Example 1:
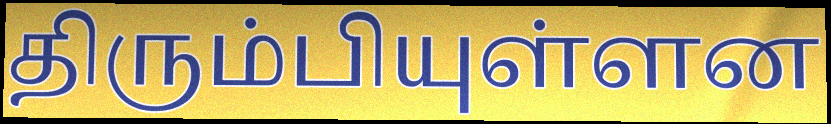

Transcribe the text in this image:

திரும்பியுள்ளன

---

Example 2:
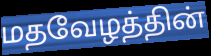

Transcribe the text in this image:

மதவேழத்தின்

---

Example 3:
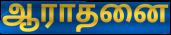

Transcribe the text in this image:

ஆராதனை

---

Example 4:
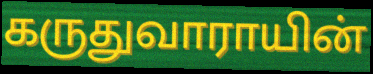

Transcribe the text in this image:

கருதுவாராயின்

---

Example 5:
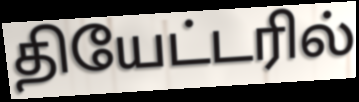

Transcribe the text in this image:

தியேட்டரில்